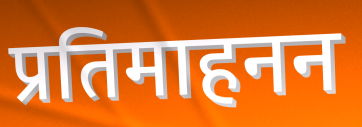
प्रतिमाहनन